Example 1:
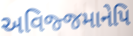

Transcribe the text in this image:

અવિજ્જમાનેપિ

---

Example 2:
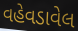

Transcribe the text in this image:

વહેવડાવેલ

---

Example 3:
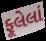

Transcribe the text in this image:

ફૂલેલાં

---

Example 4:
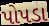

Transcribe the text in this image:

પોપડા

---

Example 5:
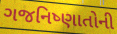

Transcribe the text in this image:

ગજનિષ્ણાતોની